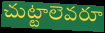
చుట్టాలెవరూ